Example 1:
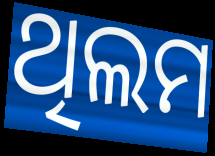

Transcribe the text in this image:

ଥିଲମ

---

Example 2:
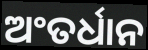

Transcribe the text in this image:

ଅଂତର୍ଧାନ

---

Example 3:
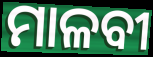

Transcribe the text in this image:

ମାଳବୀ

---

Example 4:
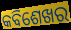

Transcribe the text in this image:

କବିଶେଖର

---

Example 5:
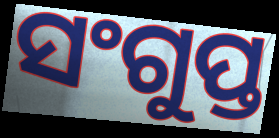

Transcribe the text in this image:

ସଂଗୁପ୍ତ